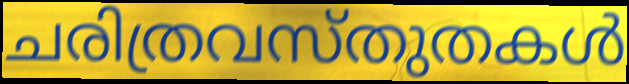
ചരിത്രവസ്തുതകൾ